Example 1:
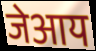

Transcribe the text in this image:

जेआय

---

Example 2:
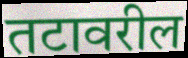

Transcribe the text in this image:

तटावरील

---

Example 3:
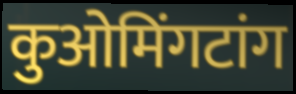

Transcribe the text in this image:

कुओमिंगटांग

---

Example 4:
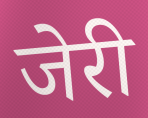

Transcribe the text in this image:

जेरी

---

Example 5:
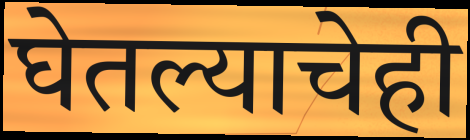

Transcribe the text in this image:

घेतल्याचेही